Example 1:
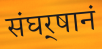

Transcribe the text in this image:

संघर्षानं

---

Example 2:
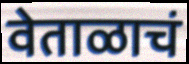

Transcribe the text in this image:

वेताळाचं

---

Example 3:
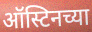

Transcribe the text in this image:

ऑस्टिनच्या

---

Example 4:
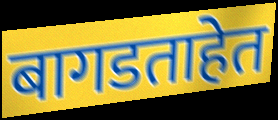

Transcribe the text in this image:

बागडताहेत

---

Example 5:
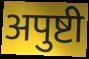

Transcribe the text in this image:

अपुष्टी